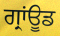
ਗ੍ਰਾਂਊਡ